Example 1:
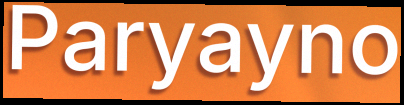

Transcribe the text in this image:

Paryayno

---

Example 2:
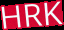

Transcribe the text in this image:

HRK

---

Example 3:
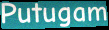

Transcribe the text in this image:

Putugam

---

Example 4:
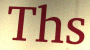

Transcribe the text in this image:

Ths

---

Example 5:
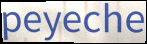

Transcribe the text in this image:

peyeche